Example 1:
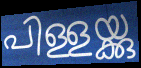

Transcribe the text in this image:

പിള്ളയ്ക്കു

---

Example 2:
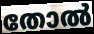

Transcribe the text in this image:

തോൽ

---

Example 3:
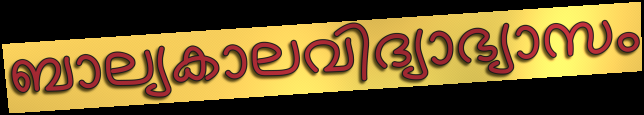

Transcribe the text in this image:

ബാല്യകാലവിദ്യാഭ്യാസം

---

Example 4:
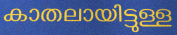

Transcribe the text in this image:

കാതലായിട്ടുള്ള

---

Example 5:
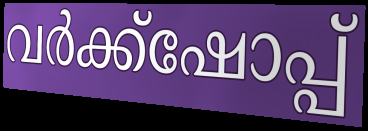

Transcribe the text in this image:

വർക്ക്ഷോപ്പ്